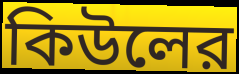
কিউলের